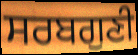
ਸਰਬਗੁਣੀ